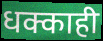
धक्काही